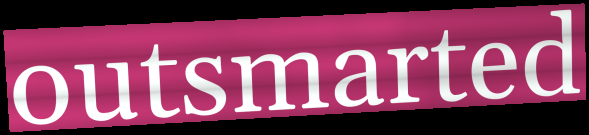
outsmarted